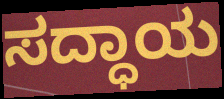
ಸದ್ಧಾಯ